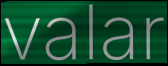
valar